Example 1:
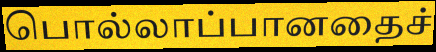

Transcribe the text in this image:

பொல்லாப்பானதைச்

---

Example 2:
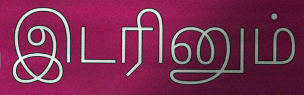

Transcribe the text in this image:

இடரினும்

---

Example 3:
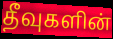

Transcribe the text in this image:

தீவுகளின்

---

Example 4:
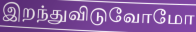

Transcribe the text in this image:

இறந்துவிடுவோமோ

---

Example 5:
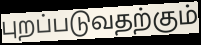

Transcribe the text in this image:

புறப்படுவதற்கும்